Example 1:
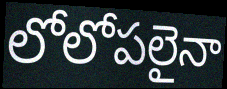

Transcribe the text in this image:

లోలోపలైనా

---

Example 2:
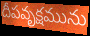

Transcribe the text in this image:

దీపవృక్షమును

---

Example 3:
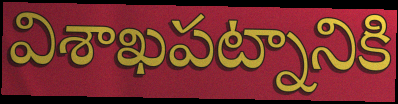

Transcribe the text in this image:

విశాఖపట్నానికి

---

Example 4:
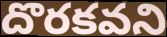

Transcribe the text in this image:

దొరకవని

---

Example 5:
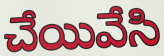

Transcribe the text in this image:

చేయివేసి